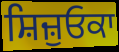
ਸ਼ਿਜ਼ੁਓਕਾ